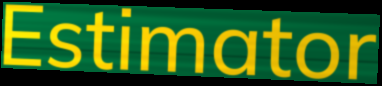
Estimator